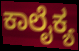
ಕಾಲೈಕ್ಯ